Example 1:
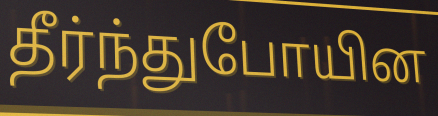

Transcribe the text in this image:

தீர்ந்துபோயின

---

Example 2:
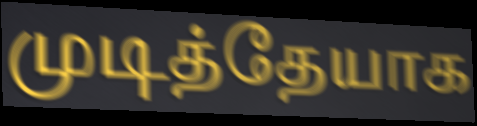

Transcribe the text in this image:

முடித்தேயாக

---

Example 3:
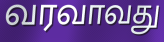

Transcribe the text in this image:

வரவாவது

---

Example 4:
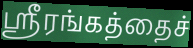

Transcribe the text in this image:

ஸ்ரீரங்கத்தைச்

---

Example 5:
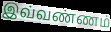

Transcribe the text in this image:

இவ்வண்ணம்